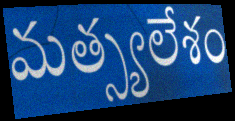
మత్స్యలేశం